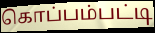
கொப்பம்பட்டி